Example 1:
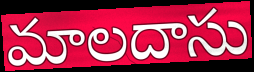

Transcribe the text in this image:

మాలదాసు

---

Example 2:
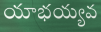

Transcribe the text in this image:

యాభయ్యవ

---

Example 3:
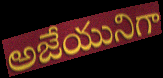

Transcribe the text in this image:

అజేయునిగా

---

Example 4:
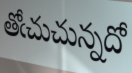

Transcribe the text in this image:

తోఁచుచున్నదో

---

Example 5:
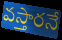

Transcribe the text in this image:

వస్తారనే